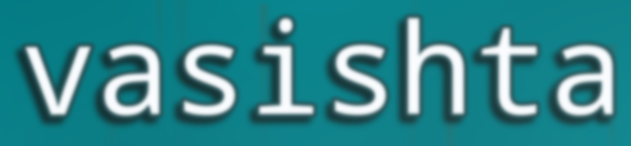
vasishta